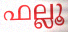
ഫല്ലൂ